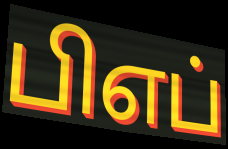
பிஎப்